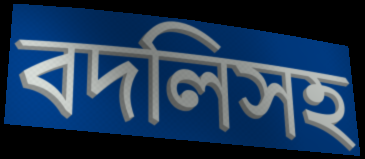
বদলিসহ